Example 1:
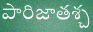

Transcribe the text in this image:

పారిజాతశ్చ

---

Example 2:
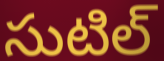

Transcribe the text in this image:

సుటిల్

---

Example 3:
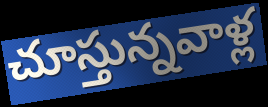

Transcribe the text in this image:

చూస్తున్నవాళ్ల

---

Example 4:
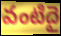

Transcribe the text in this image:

వంటిదై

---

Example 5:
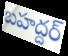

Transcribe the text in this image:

బహద్దర్